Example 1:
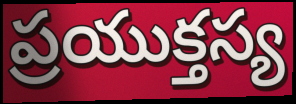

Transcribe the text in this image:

ప్రయుక్తస్య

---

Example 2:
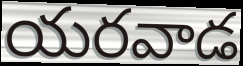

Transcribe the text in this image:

యరవాడ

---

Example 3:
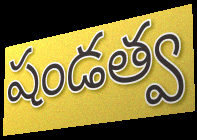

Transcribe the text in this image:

షండత్వ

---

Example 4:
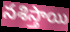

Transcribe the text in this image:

నశిస్తాయి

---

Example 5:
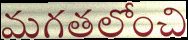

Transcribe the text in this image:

మగతలోంచి